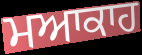
ਮਆਕਾਹ